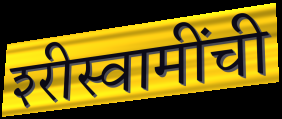
श्रीस्वामींची